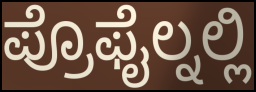
ಪ್ರೊಫೈಲ್ನಲ್ಲಿ